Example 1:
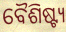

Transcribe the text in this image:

ବୈଶିଷ୍ଟ୍ୟ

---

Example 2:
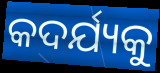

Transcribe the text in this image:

କଦର୍ଯ୍ୟକୁ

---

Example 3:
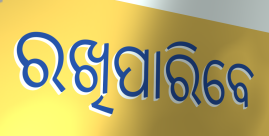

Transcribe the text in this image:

ରଖିପାରିବେ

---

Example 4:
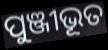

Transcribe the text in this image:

ପୁଞ୍ଜୀଭୂତ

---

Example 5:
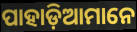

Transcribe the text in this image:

ପାହାଡ଼ିଆମାନେ